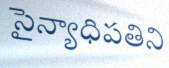
సైన్యాధిపతిని